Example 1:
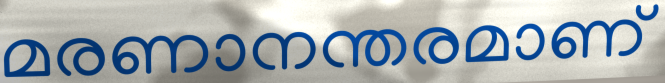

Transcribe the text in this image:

മരണാനന്തരമാണ്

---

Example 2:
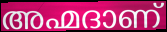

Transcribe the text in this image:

അഹ്മദാണ്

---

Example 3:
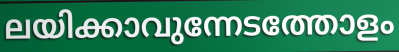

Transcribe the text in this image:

ലയിക്കാവുന്നേടത്തോളം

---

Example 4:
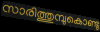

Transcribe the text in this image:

സാരിത്തുമ്പുകൊണ്ടു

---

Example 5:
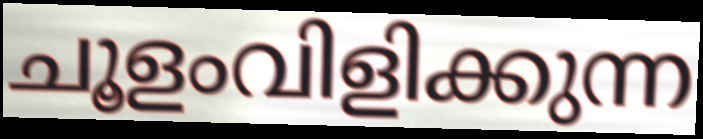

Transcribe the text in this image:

ചൂളംവിളിക്കുന്ന